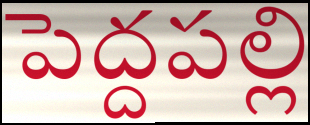
పెద్దపల్లి